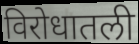
विरोधातली